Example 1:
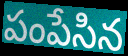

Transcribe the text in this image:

పంపేసిన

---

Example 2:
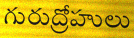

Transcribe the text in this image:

గురుద్రోహులు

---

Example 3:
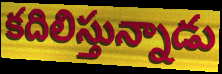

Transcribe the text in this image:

కదిలిస్తున్నాడు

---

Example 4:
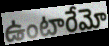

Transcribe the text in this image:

ఉంటారేమో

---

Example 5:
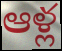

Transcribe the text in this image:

ఆళ్ల